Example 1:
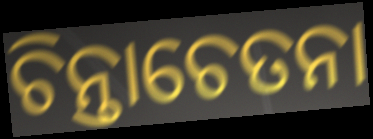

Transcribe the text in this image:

ଚିନ୍ତାଚେତନା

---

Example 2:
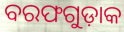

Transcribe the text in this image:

ବରଫଗୁଡ଼ାକ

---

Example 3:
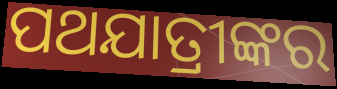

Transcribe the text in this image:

ପଥଯାତ୍ରୀଙ୍କର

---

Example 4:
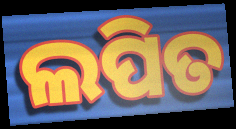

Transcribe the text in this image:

ଲପିତ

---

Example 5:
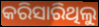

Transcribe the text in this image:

କରିସାରିଥିଲୁ